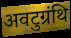
अवटुग्रंथि